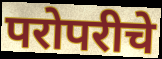
परोपरीचे